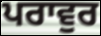
ਪਰਾਵੁਰ